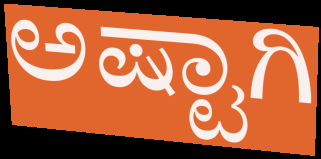
ಅಷ್ಟಾಗಿ